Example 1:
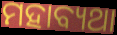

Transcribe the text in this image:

ମହାବ୍ୟଥା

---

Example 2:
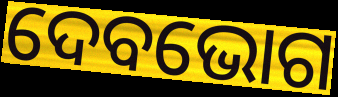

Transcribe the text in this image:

ଦେବଭୋଗ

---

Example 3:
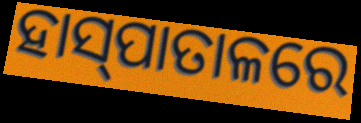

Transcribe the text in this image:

ହାସ୍‍ପାତାଳରେ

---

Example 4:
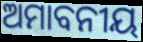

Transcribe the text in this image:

ଅମାବନୀୟ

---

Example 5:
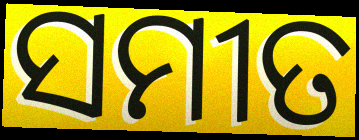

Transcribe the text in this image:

ସମୀତ